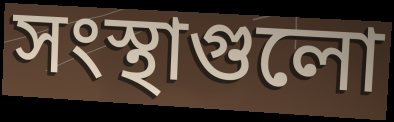
সংস্থাগুলো